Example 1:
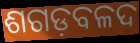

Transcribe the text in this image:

ଶଗଡ଼ବଳଦ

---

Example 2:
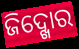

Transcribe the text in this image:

ଜିଦ୍ଖୋର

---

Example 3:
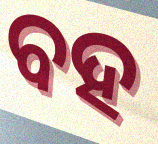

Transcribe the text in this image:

ବହ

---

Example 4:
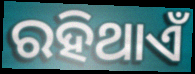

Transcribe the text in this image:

ରହିଥାଏଁ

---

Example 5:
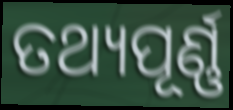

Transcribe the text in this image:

ତଥ୍ୟପୂର୍ଣ୍ଣ